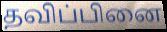
தவிப்பினை